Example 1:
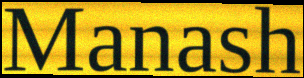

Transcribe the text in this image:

Manash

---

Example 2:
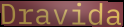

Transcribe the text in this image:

Dravida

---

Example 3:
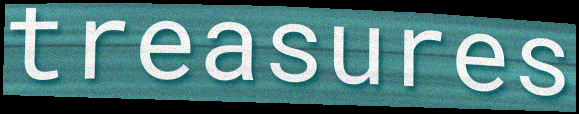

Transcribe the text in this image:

treasures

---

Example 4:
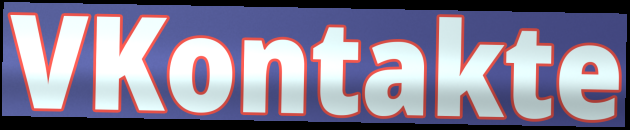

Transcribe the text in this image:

VKontakte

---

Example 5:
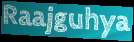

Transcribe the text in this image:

Raajguhya